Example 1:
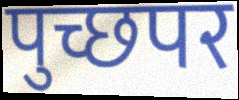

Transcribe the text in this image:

पुच्छपर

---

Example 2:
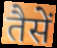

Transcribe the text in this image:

तैसें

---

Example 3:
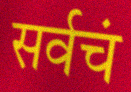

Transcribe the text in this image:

सर्वचं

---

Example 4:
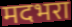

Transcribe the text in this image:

मदभरा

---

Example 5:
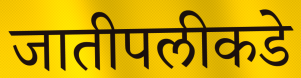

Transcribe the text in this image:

जातीपलीकडे